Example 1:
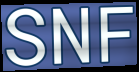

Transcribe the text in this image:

SNF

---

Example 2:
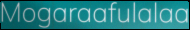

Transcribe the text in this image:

Mogaraafulalaa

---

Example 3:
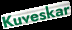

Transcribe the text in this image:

Kuveskar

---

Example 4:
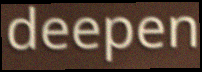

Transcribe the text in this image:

deepen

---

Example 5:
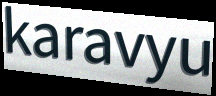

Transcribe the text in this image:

karavyu